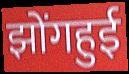
झोंगहुई